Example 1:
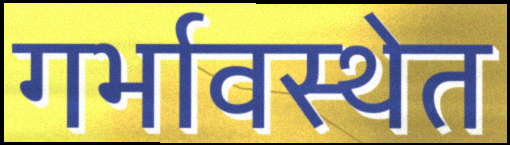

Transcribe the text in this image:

गर्भावस्थेत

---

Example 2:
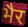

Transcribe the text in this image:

भैर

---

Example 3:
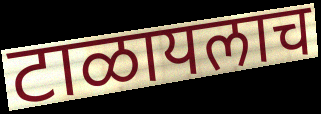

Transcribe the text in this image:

टाळायलाच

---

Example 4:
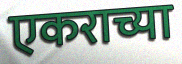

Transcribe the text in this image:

एकराच्या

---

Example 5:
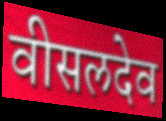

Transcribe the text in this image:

वीसलदेव